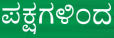
ಪಕ್ಷಗಳಿಂದ